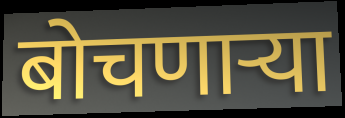
बोचणाऱ्या